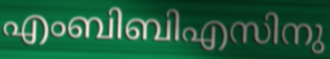
എംബിബിഎസിനു